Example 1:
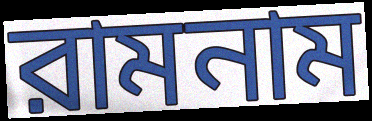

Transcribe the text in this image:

রামনাম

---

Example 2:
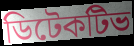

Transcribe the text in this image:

ডিটেকটিভ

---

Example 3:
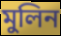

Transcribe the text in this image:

মুলিন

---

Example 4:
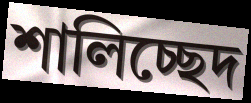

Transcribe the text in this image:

শালিচ্ছেদ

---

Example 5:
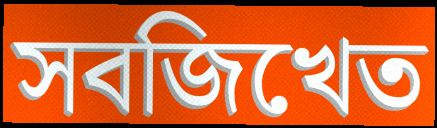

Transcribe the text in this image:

সবজিখেত